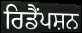
ਰਿਡੈਂਪਸ਼ਨ